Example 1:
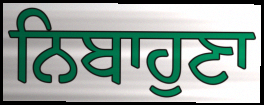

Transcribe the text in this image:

ਨਿਬਾਹੁਣਾ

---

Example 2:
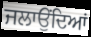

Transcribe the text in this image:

ਜਲਾਉਂਦਿਆਂ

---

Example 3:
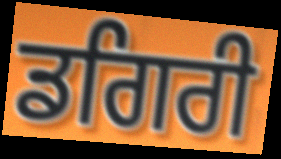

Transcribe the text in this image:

ਡਗਿਰੀ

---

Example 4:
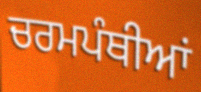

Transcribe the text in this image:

ਚਰਮਪੰਥੀਆਂ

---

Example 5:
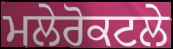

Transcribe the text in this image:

ਮਲੇਰੋਕਟਲੇ